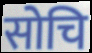
सोचि